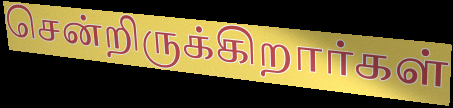
சென்றிருக்கிறார்கள்